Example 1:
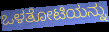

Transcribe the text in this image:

ಒಳತೋಟಿಯನ್ನು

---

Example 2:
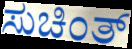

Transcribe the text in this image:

ಸುಚಿಂತ್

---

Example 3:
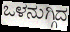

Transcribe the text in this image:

ಒಳನುಗ್ಗಿದ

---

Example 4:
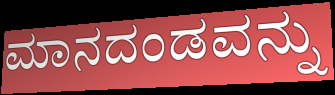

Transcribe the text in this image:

ಮಾನದಂಡವನ್ನು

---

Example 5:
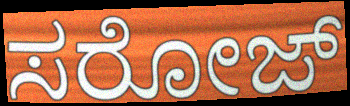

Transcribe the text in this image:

ಸರೋಜ್